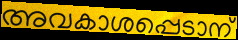
അവകാശപ്പെടാന്